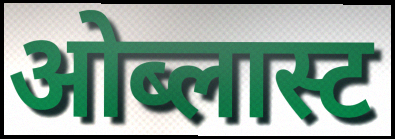
ओब्लास्ट